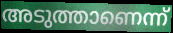
അടുത്താണെന്ന്